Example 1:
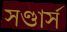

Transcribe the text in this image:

সণ্ডার্স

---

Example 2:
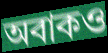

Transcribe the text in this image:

অবাকও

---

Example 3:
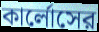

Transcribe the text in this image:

কার্লোসের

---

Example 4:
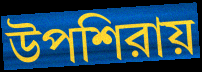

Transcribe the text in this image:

উপশিরায়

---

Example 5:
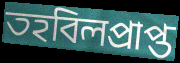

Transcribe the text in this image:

তহবিলপ্রাপ্ত